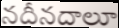
నదీనదాలూ